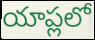
యాప్లలో